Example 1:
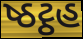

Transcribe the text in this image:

ષ્ઠટ્ઠહ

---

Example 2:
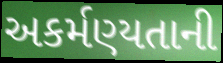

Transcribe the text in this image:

અકર્મણ્યતાની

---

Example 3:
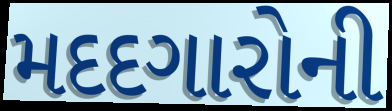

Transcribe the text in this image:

મદદગારોની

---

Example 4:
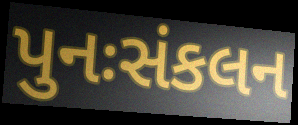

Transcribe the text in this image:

પુનઃસંકલન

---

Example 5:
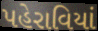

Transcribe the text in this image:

પહેરાવિયાં